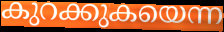
കുറക്കുകയെന്ന